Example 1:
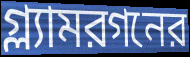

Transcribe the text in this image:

গ্ল্যামরগনের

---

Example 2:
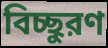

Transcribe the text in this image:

বিচ্ছুরণ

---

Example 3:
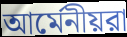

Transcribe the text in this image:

আর্মেনীয়রা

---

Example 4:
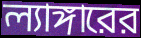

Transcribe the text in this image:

ল্যাঙ্গারের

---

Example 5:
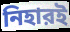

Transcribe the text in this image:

নিহারই